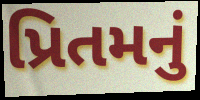
પ્રિતમનું